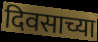
दिवसाच्या